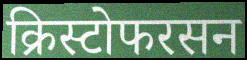
क्रिस्टोफरसन